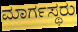
ಮಾರ್ಗಸ್ಥರು